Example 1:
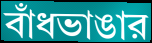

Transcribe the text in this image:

বাঁধভাঙার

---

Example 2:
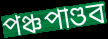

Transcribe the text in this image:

পঞ্চপাণ্ডব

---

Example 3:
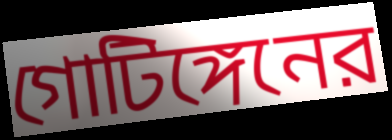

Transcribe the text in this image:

গোটিঙ্গেনের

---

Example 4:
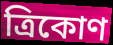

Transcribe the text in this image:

ত্রিকোণ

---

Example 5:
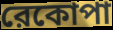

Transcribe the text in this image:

রেকোপা